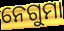
ନେଗୁମା